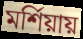
মর্শিয়ায়